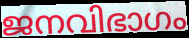
ജനവിഭാഗം